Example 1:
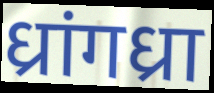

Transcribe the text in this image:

ध्रांगध्रा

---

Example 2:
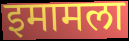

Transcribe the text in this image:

इमामला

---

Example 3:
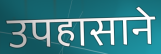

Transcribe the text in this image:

उपहासाने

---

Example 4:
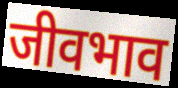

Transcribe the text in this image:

जीवभाव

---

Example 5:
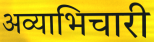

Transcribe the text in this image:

अव्याभिचारी